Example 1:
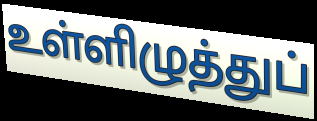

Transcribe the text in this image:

உள்ளிழுத்துப்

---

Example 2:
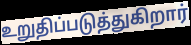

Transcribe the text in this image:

உறுதிப்படுத்துகிறார்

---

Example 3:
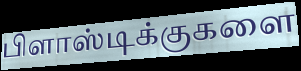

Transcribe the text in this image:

பிளாஸ்டிக்குகளை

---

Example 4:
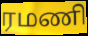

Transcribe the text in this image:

ரமணி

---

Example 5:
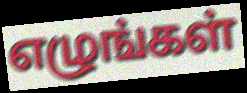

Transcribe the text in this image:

எழுங்கள்